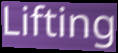
Lifting